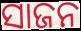
ସାଜନ